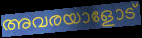
അവരയാളോട്